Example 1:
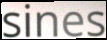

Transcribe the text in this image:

sines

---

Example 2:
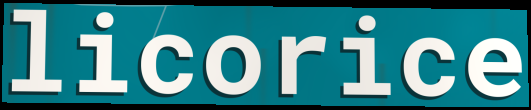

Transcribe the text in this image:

licorice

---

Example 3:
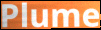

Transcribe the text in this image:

Plume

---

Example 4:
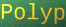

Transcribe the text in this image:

Polyp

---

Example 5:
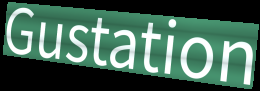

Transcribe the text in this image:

Gustation